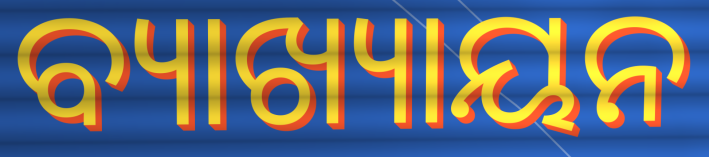
ବ୍ୟାଖ୍ୟାୟନ